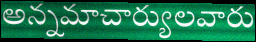
అన్నమాచార్యులవారు